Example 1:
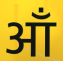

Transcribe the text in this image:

आँ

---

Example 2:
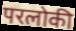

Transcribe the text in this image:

परलोकी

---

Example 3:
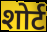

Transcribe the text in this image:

शोर्ट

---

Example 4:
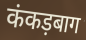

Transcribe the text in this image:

कंकड़बाग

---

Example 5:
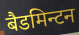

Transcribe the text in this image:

बैडमिन्टन